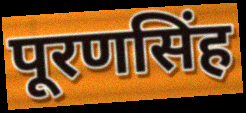
पूरणसिंह